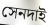
সেনদাই